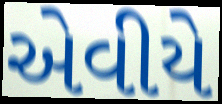
એવીયે